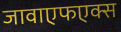
जावाएफएक्स